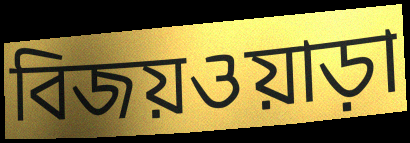
বিজয়ওয়াড়া